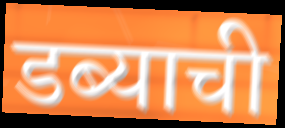
डब्याची